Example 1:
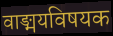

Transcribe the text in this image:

वाङ्मयविषयक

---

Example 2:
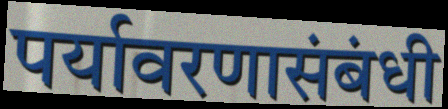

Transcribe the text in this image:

पर्यावरणासंबंधी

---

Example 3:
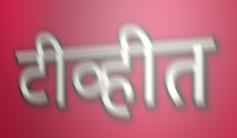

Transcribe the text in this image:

टीव्हीत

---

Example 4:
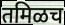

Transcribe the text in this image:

तमिळच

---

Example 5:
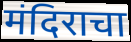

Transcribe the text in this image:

मंदिराचा